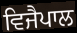
ਵਿਜੈਪਾਲ